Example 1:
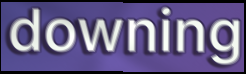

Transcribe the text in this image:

downing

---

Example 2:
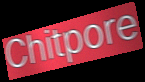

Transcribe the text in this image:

Chitpore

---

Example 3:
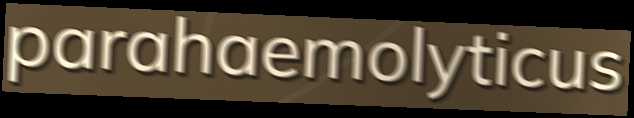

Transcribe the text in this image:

parahaemolyticus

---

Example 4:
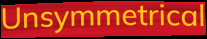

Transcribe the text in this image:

Unsymmetrical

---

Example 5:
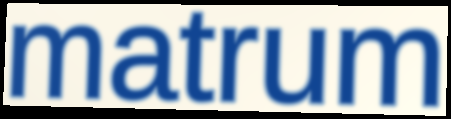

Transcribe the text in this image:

matrum